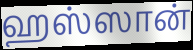
ஹஸ்ஸான்